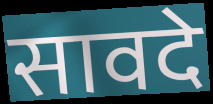
सावदे